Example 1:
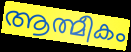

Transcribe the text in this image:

ആത്മീകം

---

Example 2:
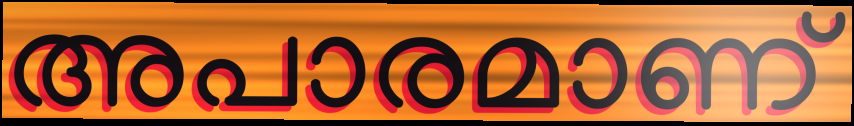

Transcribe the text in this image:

അപാരമാണ്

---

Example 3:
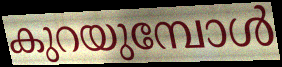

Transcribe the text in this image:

കുറയുമ്പോൾ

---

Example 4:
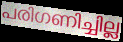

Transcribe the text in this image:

പരിഗണിച്ചില്ല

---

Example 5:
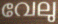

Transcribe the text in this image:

വേലു